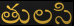
తులసి